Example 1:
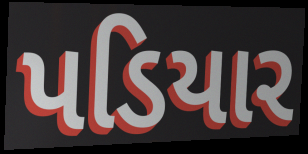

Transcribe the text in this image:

પડિયાર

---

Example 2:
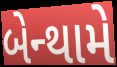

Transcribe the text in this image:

બેન્થામે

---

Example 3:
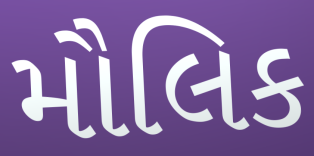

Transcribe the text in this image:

મૌલિક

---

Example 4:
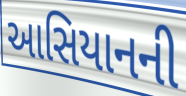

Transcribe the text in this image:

આસિયાનની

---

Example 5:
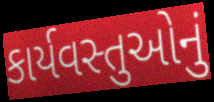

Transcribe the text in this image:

કાર્યવસ્તુઓનું